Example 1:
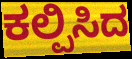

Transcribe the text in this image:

ಕಲ್ಪಿಸಿದ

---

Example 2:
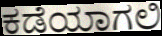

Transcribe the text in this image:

ಕಡೆಯಾಗಲಿ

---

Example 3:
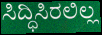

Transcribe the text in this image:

ಸಿದ್ಧಿಸಿರಲಿಲ್ಲ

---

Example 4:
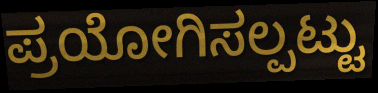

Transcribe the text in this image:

ಪ್ರಯೋಗಿಸಲ್ಪಟ್ಟು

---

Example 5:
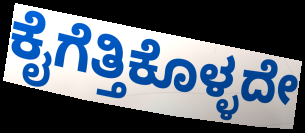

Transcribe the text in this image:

ಕೈಗೆತ್ತಿಕೊಳ್ಳದೇ